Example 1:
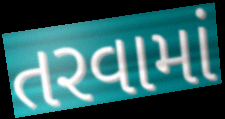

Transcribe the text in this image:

તરવામાં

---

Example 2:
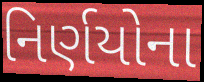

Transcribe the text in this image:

નિર્ણયોના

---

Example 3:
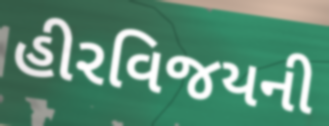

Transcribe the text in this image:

હીરવિજયની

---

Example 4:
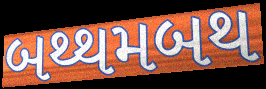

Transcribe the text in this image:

બથ્થમબથ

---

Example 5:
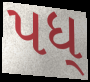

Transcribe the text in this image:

પધ્